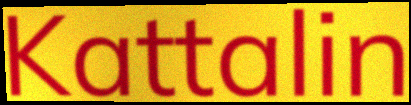
Kattalin